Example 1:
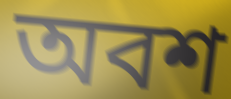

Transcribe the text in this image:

অবশ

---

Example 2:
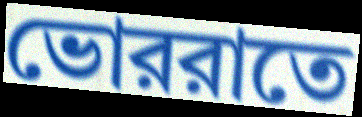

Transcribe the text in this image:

ভোররাতে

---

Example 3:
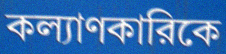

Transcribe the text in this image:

কল্যাণকারিকে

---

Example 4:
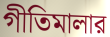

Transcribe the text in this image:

গীতিমালার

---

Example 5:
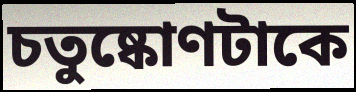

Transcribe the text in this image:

চতুষ্কোণটাকে